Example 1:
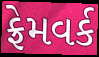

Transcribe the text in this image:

ફ્રેમવર્ક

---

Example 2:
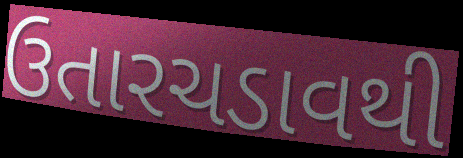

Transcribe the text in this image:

ઉતારચડાવથી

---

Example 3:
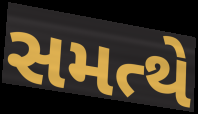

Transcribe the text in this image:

સમત્થે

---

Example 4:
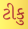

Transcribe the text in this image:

ટીકુ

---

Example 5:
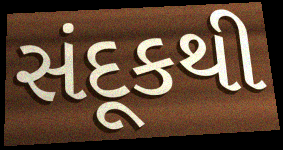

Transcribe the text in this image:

સંદૂકથી